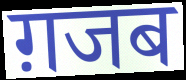
ग़जब